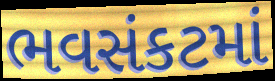
ભવસંકટમાં